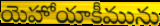
యెహోయాకీమును